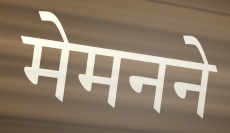
मेमनने